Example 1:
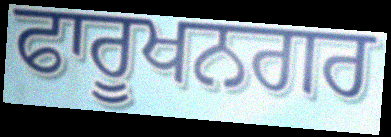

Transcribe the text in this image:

ਫਾਰੂਖਨਗਰ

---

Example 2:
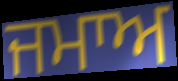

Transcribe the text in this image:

ਜਮਾਅ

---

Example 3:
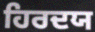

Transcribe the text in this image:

ਹਿਰਦਯ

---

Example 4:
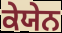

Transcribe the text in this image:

ਕੇਯੇਨ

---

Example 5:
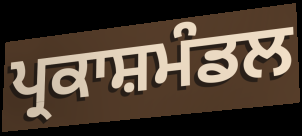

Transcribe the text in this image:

ਪ੍ਰਕਾਸ਼ਮੰਡਲ